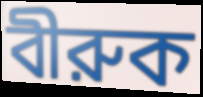
বীৰুক